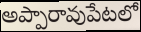
అప్పారావుపేటలో